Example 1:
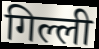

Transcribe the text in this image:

गिल्ली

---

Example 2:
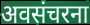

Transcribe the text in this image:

अवसंचरना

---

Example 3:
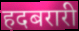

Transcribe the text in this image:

हदबरारी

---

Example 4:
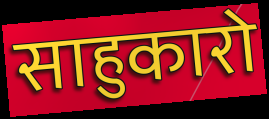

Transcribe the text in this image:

साहुकारो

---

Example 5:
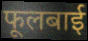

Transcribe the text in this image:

फूलबाई